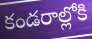
కండరాల్లోకి